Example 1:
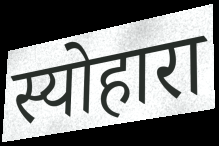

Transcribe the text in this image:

स्योहारा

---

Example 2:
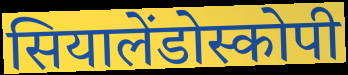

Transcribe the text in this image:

सियालेंडोस्कोपी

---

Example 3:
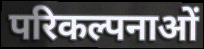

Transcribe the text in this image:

परिकल्पनाओं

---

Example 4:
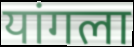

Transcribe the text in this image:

यांगला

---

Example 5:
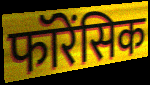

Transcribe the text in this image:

फॉरेंसिक